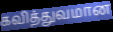
கவித்துவமான